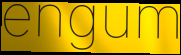
engum